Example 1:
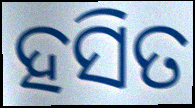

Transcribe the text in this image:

ହସିତ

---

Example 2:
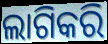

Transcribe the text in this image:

ଲାଗିକରି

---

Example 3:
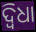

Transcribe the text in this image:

ଦ୍ୱିଧା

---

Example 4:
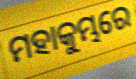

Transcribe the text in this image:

ମହାକୁମ୍ଭରେ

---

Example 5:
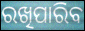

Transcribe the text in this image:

ରଖିପାରିବ